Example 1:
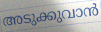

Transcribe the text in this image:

അടുക്കുവാൻ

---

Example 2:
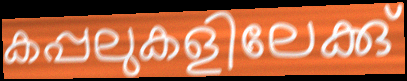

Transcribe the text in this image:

കപ്പലുകളിലേക്കു്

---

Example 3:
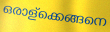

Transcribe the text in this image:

ഒരാള്ക്കെങ്ങനെ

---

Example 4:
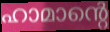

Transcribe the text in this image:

ഹാമാന്റെ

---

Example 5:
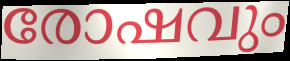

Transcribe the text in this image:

രോഷവും